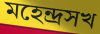
মহেন্দ্রসখ